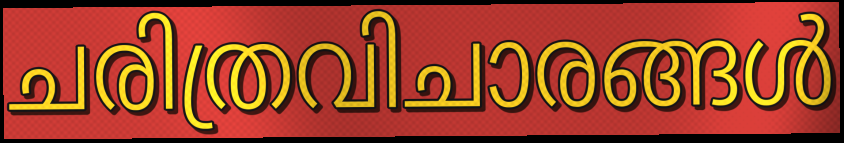
ചരിത്രവിചാരങ്ങൾ